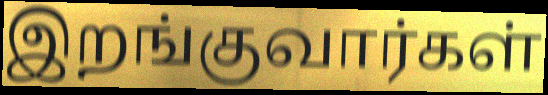
இறங்குவார்கள்